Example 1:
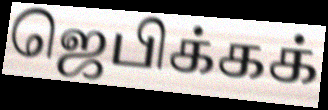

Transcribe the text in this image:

ஜெபிக்கக்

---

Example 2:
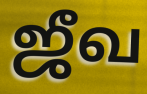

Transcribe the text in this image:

ஜீவ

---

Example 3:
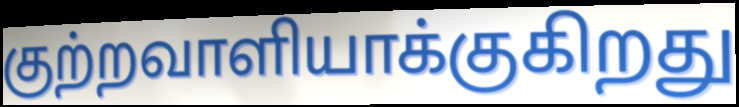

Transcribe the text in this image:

குற்றவாளியாக்குகிறது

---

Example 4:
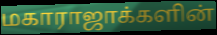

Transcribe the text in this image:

மகாராஜாக்களின்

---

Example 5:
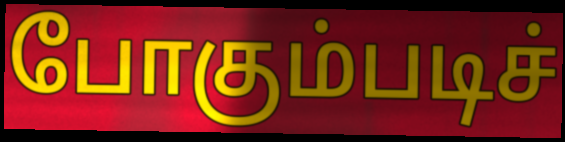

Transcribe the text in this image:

போகும்படிச்